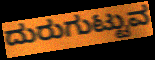
ದುರುಗುಟ್ಟುವ